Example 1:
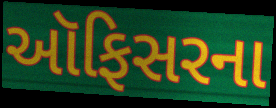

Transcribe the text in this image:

ઑફિસરના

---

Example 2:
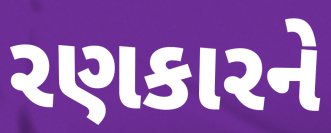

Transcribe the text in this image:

રણકારને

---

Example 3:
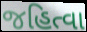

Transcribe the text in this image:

જહિત્વા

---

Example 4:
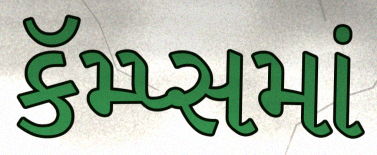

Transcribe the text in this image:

કૅમ્પ્સમાં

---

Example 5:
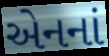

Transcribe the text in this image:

એનનાં